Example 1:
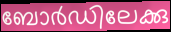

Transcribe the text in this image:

ബോർഡിലേക്കു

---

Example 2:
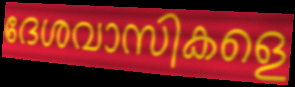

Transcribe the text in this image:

ദേശവാസികളെ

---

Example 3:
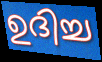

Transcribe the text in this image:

ഉദിച്ച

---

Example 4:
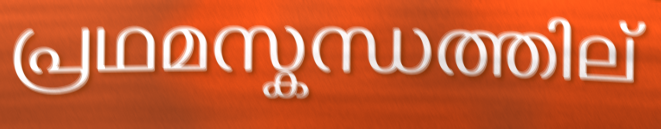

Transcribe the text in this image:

പ്രഥമസ്കന്ധത്തില്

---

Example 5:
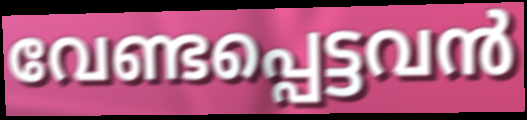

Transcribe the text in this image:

വേണ്ടപ്പെട്ടവൻ